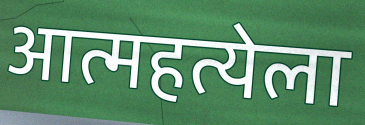
आत्महत्येला